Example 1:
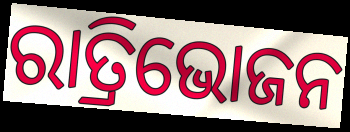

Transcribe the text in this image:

ରାତ୍ରିଭୋଜନ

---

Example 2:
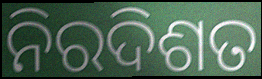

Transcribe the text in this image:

ନିରଦିଶତ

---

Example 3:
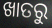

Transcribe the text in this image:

ଖାତରୁ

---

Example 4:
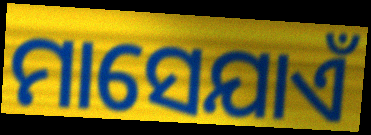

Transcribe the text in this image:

ମାସେଯାଏଁ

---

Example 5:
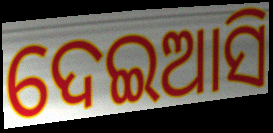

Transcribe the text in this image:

ଦେଇଆସି